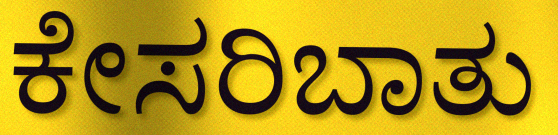
ಕೇಸರಿಬಾತು